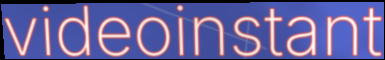
videoinstant